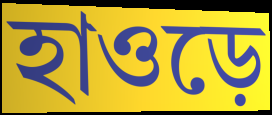
হাওড়ে